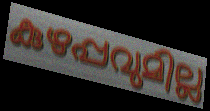
കുഴപ്പവുമില്ല